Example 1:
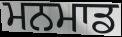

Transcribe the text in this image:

ਮਨਮਾਡ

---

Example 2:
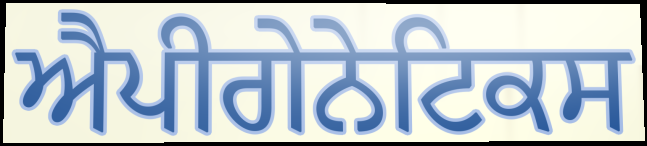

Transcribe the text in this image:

ਐਪੀਗੇਨੇਟਿਕਸ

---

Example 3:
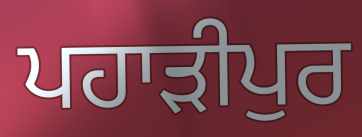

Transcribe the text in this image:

ਪਹਾੜੀਪੁਰ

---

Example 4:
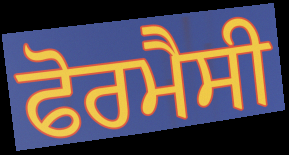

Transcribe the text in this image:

ਫੋਰਮੈਸੀ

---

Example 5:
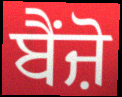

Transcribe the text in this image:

ਬੈਂਜ਼ੋ